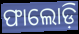
ଫାଲୋଡ଼ି